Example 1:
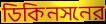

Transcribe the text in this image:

ডিকিনসনের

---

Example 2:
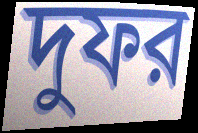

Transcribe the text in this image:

দুফর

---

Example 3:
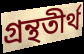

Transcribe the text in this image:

গ্রন্থতীর্থ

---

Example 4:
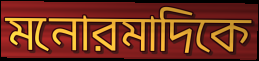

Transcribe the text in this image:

মনোরমাদিকে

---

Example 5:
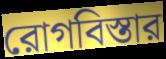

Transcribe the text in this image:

রোগবিস্তার